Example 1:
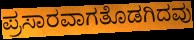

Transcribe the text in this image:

ಪ್ರಸಾರವಾಗತೊಡಗಿದವು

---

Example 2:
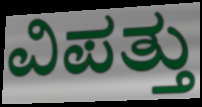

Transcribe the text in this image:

ವಿಪತ್ತು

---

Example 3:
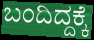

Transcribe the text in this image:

ಬಂದಿದ್ದಕ್ಕೆ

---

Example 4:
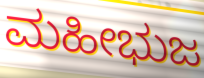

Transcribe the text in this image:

ಮಹೀಭುಜ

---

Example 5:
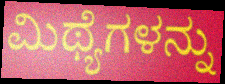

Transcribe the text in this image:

ಮಿಥ್ಯೆಗಳನ್ನು